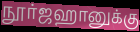
நூர்ஜஹானுக்கு